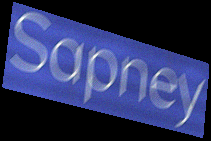
Sapney